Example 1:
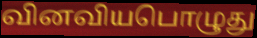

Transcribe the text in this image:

வினவியபொழுது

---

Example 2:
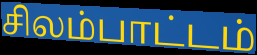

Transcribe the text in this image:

சிலம்பாட்டம்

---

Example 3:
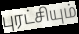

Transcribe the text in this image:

புரட்சியும்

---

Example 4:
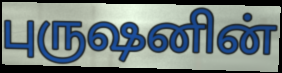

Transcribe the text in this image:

புருஷனின்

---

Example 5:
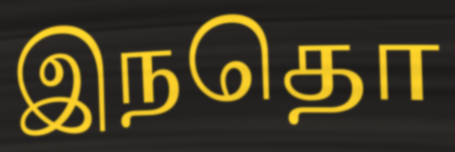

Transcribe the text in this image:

இநதொ